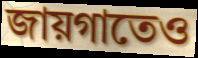
জায়গাতেও